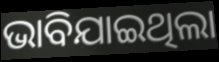
ଭାବିଯାଇଥିଲା